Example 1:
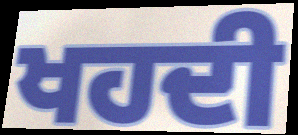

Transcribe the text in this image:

ਖਹਦੀ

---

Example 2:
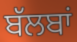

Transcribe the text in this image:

ਬੱਲਬਾਂ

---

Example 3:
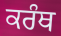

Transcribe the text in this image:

ਕਰੰਥ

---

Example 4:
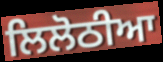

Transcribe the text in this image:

ਲਿਲੋਠੀਆ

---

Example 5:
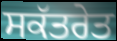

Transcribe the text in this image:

ਸਕੱਤਰੇਤ